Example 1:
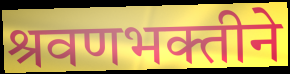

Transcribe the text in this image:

श्रवणभक्तीने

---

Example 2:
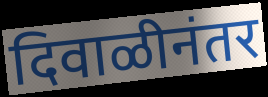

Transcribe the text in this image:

दिवाळीनंतर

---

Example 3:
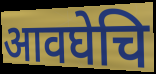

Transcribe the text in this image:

आवघेचि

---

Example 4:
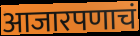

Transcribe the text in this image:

आजारपणाचं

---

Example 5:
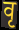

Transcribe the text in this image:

वृ